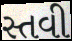
સ્તવી